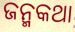
ଜନ୍ମକଥା